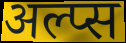
अल्प्स